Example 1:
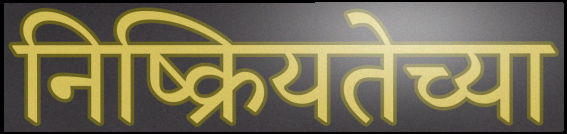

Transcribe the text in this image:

निष्क्रियतेच्या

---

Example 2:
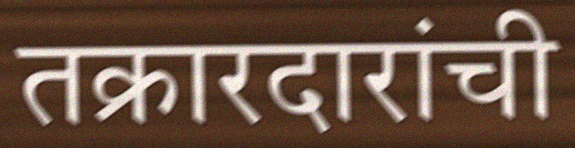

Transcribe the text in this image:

तक्रारदारांची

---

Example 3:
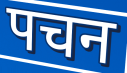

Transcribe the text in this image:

पचन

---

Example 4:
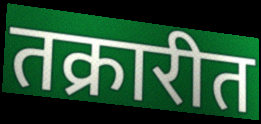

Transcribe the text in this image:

तक्रारीत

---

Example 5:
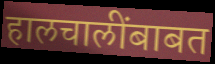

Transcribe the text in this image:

हालचालींबाबत